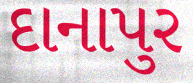
દાનાપુર